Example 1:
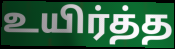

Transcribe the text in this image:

உயிர்த்த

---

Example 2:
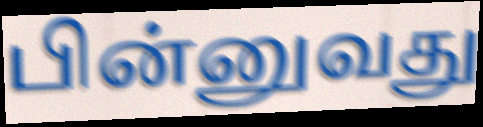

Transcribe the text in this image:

பின்னுவது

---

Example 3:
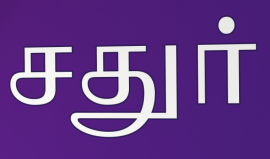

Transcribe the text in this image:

சதுர்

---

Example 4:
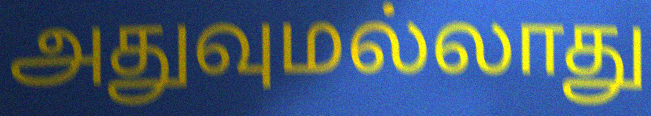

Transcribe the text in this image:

அதுவுமல்லாது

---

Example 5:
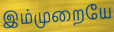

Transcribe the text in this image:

இம்முறையே